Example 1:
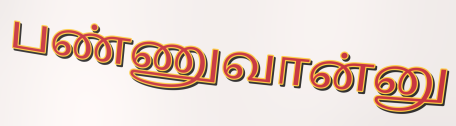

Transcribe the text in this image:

பண்ணுவான்னு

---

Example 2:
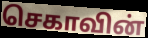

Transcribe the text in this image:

செகாவின்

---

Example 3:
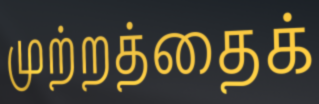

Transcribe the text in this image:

முற்றத்தைக்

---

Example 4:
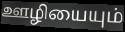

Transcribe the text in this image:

ஊழியையும்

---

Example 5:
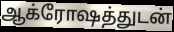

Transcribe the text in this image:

ஆக்ரோஷத்துடன்